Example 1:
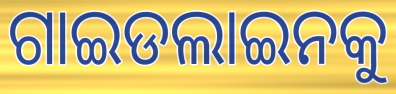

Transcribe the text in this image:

ଗାଇଡଲାଇନକୁ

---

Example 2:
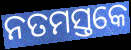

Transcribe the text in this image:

ନତମସ୍ତକେ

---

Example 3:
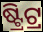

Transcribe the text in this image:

ଷ୍ଟ୍ରିଟ୍ର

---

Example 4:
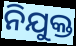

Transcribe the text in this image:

ନିଯୁକ୍ତ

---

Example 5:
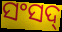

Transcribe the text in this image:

ସଂସଦ୍